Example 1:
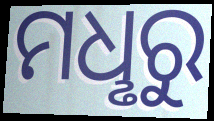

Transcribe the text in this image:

ମଧୢରୁ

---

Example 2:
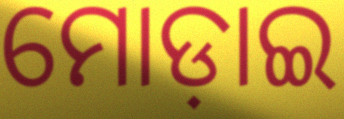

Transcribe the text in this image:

ମୋଡ଼ାଇ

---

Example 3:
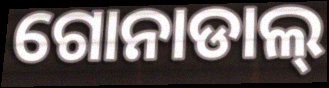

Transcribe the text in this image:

ଗୋନାଡାଲ୍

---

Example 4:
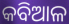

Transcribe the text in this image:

କବିଆଳ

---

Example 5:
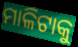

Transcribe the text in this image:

ମାଳିଟାକୁ